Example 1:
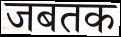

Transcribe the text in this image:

जबतक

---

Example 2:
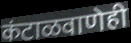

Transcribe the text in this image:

कंटाळवाणेही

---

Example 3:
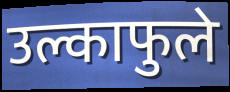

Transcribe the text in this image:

उल्काफुले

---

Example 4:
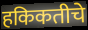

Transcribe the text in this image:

हकिकतीचे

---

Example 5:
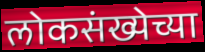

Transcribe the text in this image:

लोकसंख्‍येच्‍या